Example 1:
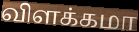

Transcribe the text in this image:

விளக்கமா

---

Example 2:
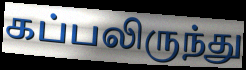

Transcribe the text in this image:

கப்பலிருந்து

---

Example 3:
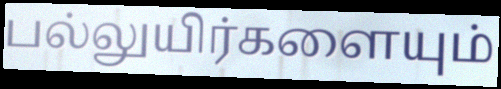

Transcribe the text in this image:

பல்லுயிர்களையும்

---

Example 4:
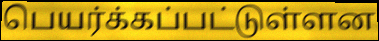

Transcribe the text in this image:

பெயர்க்கப்பட்டுள்ளன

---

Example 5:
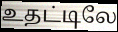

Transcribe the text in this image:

உதட்டிலே